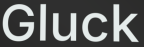
Gluck